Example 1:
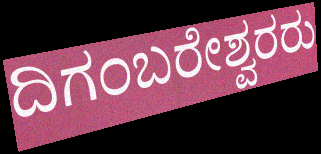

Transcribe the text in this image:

ದಿಗಂಬರೇಶ್ವರರು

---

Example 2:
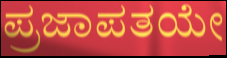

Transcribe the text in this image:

ಪ್ರಜಾಪತಯೇ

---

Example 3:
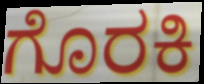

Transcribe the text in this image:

ಗೊರಕಿ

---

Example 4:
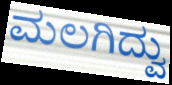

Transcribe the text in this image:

ಮಲಗಿದ್ವು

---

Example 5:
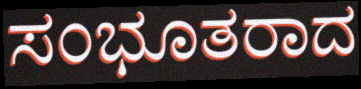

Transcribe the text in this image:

ಸಂಭೂತರಾದ